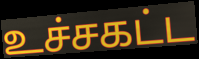
உச்சகட்ட